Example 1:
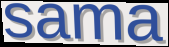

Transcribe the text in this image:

sama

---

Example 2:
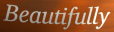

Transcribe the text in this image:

Beautifully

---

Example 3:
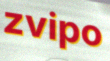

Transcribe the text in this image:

zvipo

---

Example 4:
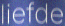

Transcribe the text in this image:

liefde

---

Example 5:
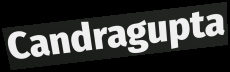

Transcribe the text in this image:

Candragupta